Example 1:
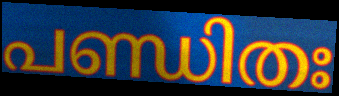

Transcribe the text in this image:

പണ്ഡിതഃ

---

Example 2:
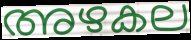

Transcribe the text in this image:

അഴകല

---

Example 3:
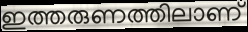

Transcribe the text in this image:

ഇത്തരുണത്തിലാണ്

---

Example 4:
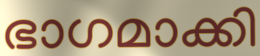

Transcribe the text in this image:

ഭാഗമാക്കി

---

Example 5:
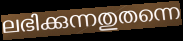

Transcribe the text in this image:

ലഭിക്കുന്നതുതന്നെ